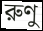
রুণু